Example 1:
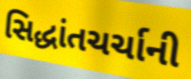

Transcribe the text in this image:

સિદ્ધાંતચર્ચાની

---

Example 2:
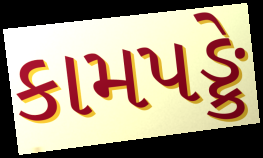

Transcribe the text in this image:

કામપઙ્કે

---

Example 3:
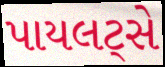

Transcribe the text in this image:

પાયલટ્સે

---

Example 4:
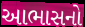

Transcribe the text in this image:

આભાસનો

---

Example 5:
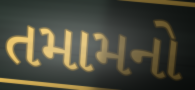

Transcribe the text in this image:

તમામનો